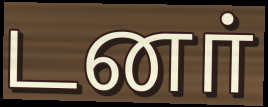
டனர்